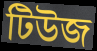
টিউজ